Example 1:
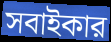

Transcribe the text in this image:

সবাইকার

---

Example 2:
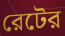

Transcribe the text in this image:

রেটের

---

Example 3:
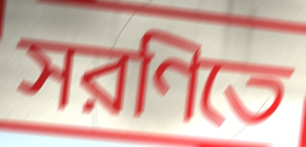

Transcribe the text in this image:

সরণিতে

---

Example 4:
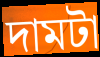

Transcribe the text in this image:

দামটা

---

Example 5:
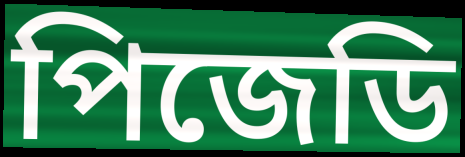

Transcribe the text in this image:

পিজেডি